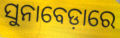
ସୁନାବେଡ଼ାରେ